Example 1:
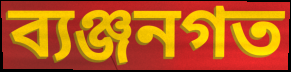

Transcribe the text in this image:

ব্যঞ্জনগত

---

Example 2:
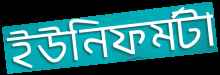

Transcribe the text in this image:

ইউনিফর্মটা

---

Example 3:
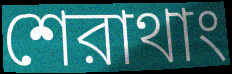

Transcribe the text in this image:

শেরাথাং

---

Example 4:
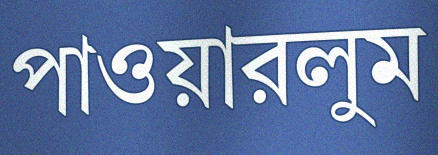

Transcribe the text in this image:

পাওয়ারলুম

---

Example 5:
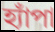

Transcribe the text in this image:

হ্যাঁপা